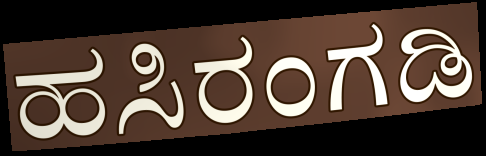
ಹಸಿರಂಗಡಿ